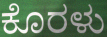
ಕೊರಳು